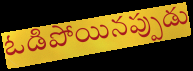
ఓడిపోయినప్పుడు